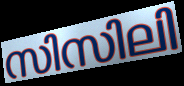
സിസിലി